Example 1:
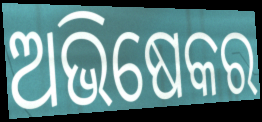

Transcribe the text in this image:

ଅଭିଷେକର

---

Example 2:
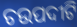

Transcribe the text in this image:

ଚଉପଦୀଟି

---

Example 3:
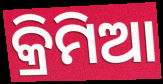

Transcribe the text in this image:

କ୍ରିମିଆ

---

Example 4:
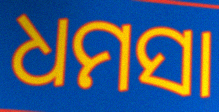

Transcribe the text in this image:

ଧମସା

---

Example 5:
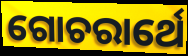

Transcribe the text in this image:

ଗୋଚରାର୍ଥେ